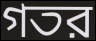
গতর